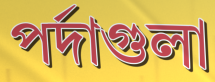
পর্দাগুলা